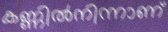
കണ്ണിൽനിന്നാണ്